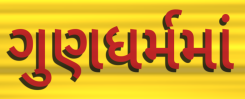
ગુણધર્મમાં